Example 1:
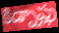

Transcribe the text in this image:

కిడ్నాప్లు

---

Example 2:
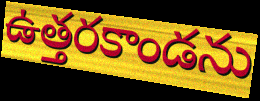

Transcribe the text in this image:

ఉత్తరకాండను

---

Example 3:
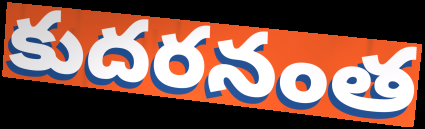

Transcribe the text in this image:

కుదరనంత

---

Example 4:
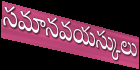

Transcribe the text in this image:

సమానవయస్కులు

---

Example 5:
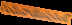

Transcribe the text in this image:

గురువాయుపురంలో